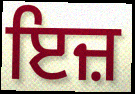
ਇਜ਼